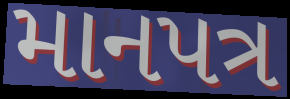
માનપત્ર